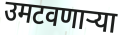
उमटवणार्‍या